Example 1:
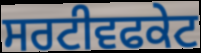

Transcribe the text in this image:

ਸਰਟੀਵਫਕੇਟ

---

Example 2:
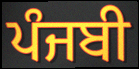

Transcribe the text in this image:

ਪੰਜਬੀ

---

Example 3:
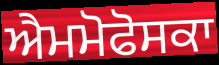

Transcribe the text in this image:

ਐਮਮੋਫੋਸਕਾ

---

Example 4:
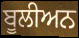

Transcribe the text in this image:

ਬੂਲੀਅਨ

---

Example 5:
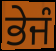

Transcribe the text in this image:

ਭੇਜੰ